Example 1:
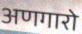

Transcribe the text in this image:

अणगारो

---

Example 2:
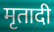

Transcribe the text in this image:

मृतादी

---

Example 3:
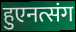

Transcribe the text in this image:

हुएनत्संग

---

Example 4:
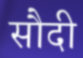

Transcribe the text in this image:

सौदी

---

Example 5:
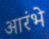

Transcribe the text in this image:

आरंभे